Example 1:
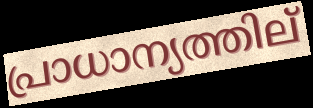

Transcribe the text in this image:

പ്രാധാന്യത്തില്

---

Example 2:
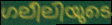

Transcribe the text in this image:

ഗലീലിയുടെ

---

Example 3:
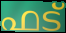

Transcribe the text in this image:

ഫട്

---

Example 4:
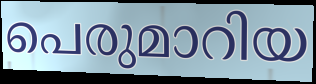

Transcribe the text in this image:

പെരുമാറിയ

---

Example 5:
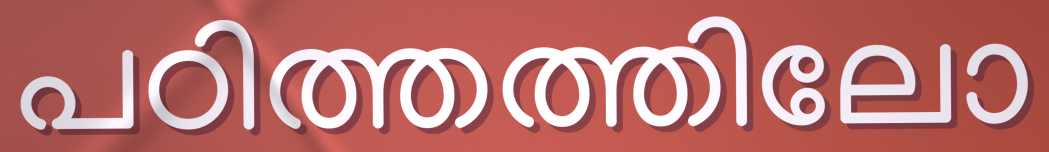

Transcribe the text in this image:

പഠിത്തത്തിലോ